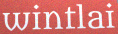
wintlai